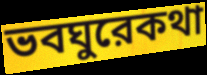
ভবঘুরেকথা